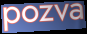
pozva